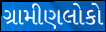
ગ્રામીણલોકો